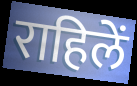
राहिलें